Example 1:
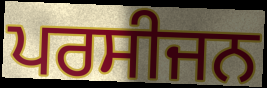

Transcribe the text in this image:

ਪਰਸੀਜਨ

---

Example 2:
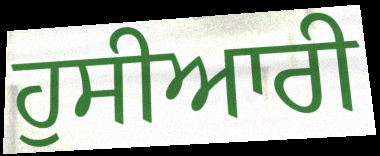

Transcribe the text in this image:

ਹੁਸੀਆਰੀ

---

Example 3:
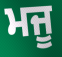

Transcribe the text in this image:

ਮਜੂ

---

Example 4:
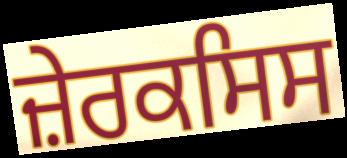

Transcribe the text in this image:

ਜ਼ੇਰਕਸਿਸ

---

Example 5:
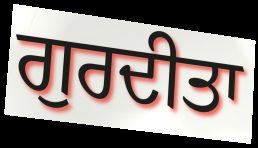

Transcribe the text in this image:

ਗੁਰਦੀਤਾ